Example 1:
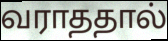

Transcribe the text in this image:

வராததால்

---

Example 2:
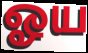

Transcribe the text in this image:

ஓய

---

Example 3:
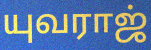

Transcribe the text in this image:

யுவராஜ்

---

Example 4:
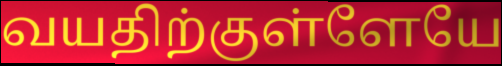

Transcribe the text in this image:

வயதிற்குள்ளேயே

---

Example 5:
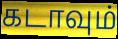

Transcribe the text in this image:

கடாவும்